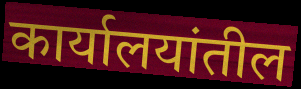
कार्यालयांतील